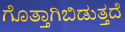
ಗೊತ್ತಾಗಿಬಿಡುತ್ತದೆ